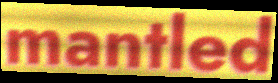
mantled